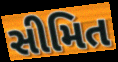
સીમિત